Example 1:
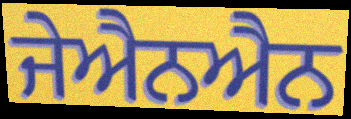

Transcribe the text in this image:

ਜੇਐਨਐਨ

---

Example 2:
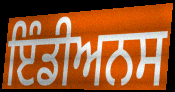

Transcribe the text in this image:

ਇੰਡੀਅਨਸ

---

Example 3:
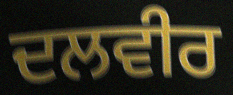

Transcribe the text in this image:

ਦਲਵੀਰ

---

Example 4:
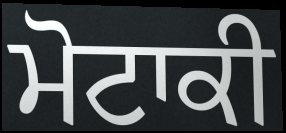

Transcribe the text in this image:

ਮੋਟਾਕੀ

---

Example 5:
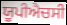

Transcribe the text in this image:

ਯੂਪੀਐਚਸੀ